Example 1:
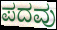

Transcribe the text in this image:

ಪದವು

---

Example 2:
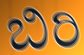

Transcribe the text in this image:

ಬಿರಿ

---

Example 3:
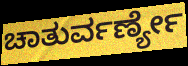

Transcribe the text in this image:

ಚಾತುರ್ವರ್ಣ್ಯೇ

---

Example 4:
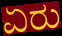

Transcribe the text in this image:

ಏರು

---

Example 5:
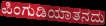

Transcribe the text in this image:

ಪಿಂಗುಡಿಯಾತನದು